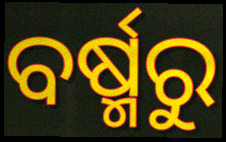
ବର୍ଷ୍ମରୁ